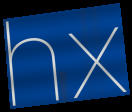
hx